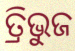
ତ୍ରିଭୁଜ